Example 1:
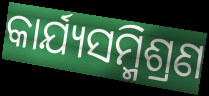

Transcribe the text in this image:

କାର୍ଯ୍ୟସମ୍ମିଶ୍ରଣ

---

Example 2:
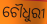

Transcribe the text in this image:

ଚୌଧୁରୀ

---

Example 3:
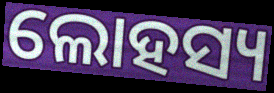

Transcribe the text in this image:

ଲୋହସ୍ୟ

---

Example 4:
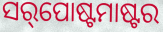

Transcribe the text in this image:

ସର୍‌ପୋଷ୍ଟମାଷ୍ଟର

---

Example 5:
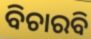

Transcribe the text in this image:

ବିଚାରବି